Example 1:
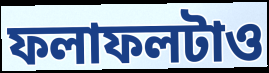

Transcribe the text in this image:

ফলাফলটাও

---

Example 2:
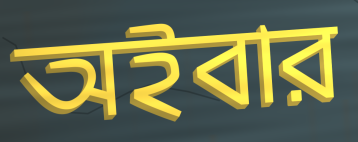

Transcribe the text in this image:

অইবার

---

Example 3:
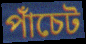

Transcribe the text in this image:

পাঁচেট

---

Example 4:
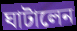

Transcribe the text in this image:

ঘাটালেন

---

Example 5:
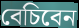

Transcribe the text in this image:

বেচিবেন